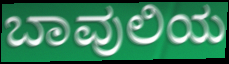
ಬಾವುಲಿಯ